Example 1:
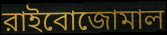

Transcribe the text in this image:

রাইবোজোমাল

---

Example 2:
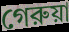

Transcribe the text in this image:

গেরুয়া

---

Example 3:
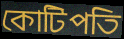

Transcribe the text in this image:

কোটিপতি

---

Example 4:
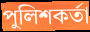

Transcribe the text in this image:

পুলিশকর্তা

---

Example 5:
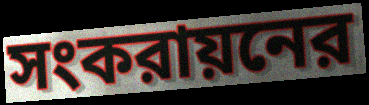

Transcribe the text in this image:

সংকরায়নের